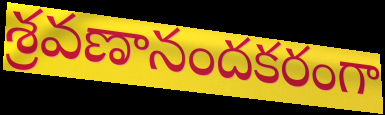
శ్రవణానందకరంగా